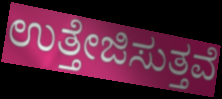
ಉತ್ತೇಜಿಸುತ್ತವೆ